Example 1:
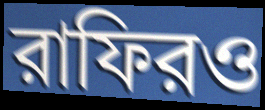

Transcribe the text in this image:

রাফিরও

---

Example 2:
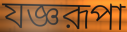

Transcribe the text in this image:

যজ্ঞরূপা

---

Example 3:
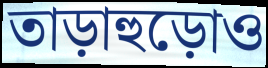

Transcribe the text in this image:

তাড়াহুড়োও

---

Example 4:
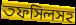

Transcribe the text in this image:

তফসিলসহ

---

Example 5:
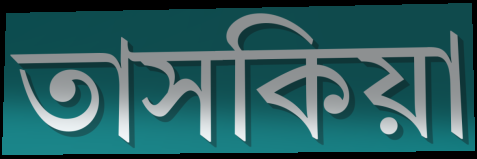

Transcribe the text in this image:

তাসকিয়া